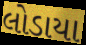
લોડાયા